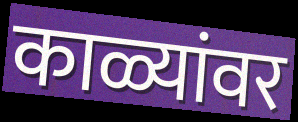
काळ्यांवर